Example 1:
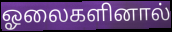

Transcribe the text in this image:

ஓலைகளினால்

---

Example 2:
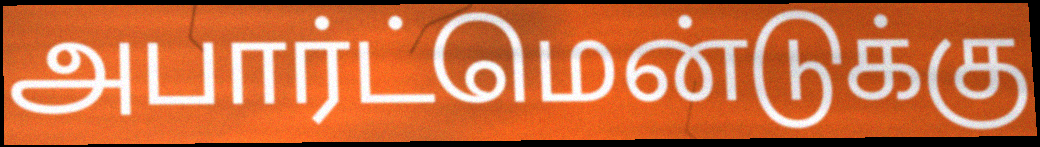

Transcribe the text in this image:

அபார்ட்மென்டுக்கு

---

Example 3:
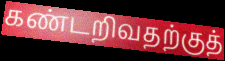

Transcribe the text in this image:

கண்டறிவதற்குத்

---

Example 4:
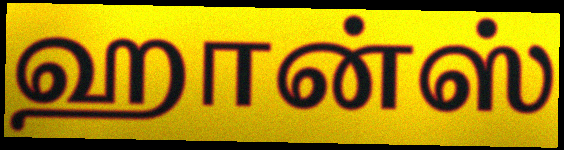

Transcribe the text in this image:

ஹான்ஸ்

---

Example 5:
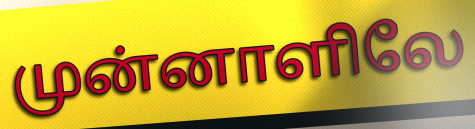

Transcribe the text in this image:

முன்னாளிலே